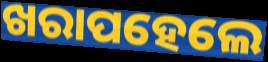
ଖରାପହେଲେ